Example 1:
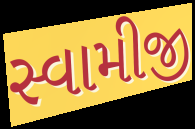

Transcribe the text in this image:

સ્વામીજી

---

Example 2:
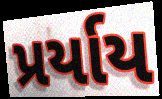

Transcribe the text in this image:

પ્રર્યાય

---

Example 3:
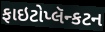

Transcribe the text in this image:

ફાઇટોપ્લૅન્કટન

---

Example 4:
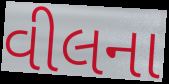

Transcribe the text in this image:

વીલના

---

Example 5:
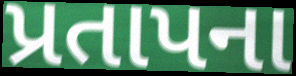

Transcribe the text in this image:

પ્રતાપના